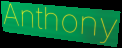
Anthony